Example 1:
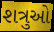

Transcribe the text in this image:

શત્રુઓ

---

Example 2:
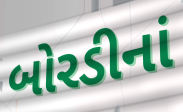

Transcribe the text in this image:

બોરડીનાં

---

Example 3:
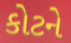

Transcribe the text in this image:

કોટને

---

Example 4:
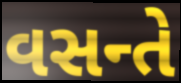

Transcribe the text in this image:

વસન્તે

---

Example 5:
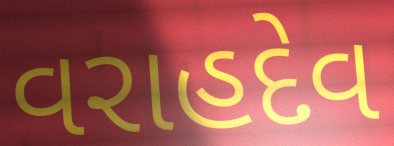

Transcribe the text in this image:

વરાહદેવ